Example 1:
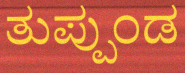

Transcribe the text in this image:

ತುಪ್ಪುಂಡ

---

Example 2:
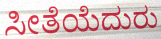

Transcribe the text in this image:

ಸೀತೆಯೆದುರು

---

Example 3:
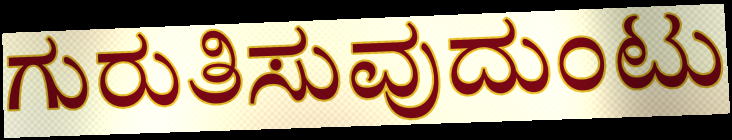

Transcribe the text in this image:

ಗುರುತಿಸುವುದುಂಟು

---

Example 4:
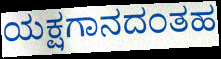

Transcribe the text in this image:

ಯಕ್ಷಗಾನದಂತಹ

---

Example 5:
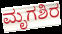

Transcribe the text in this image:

ಮೃಗಶಿರ